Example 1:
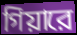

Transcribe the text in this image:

গিয়ারে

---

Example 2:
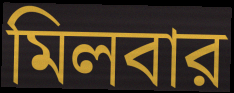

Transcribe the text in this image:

মিলবার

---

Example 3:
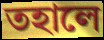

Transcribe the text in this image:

তহালে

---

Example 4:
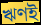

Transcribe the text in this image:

ঋণই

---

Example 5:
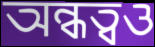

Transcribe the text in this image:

অন্ধত্বও